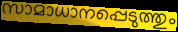
സാമാധാനപ്പെടുത്തും